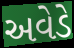
અવેડે